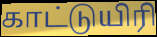
காட்டுயிரி